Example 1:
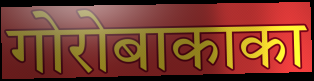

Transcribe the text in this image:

गोरोबाकाका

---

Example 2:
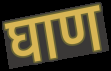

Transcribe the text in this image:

घाण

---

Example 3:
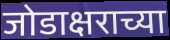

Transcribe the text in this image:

जोडाक्षराच्या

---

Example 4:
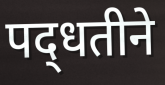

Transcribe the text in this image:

पद्‍धतीने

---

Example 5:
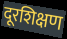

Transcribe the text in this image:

दूरशिक्षण